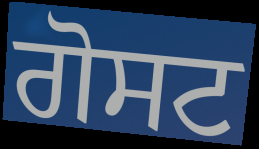
ਗੋਸਟ